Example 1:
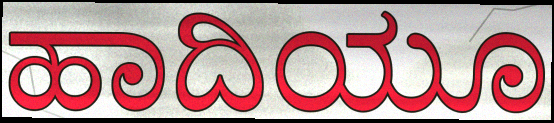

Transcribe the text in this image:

ಹಾದಿಯೂ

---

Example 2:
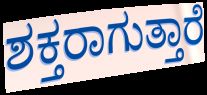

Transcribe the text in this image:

ಶಕ್ತರಾಗುತ್ತಾರೆ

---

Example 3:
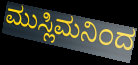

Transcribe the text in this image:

ಮುಸ್ಲಿಮನಿಂದ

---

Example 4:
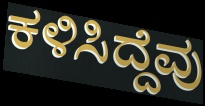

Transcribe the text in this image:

ಕಳಿಸಿದ್ದೆವು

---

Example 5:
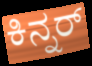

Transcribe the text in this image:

ಕಿನ್ನರ್